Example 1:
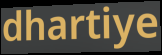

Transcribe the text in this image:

dhartiye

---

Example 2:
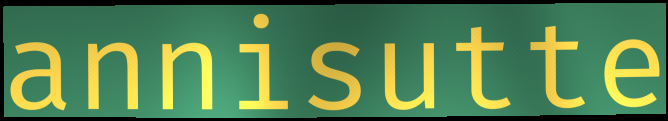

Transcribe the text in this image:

annisutte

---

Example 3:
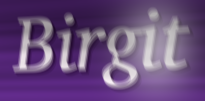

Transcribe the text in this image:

Birgit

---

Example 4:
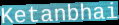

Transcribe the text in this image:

Ketanbhai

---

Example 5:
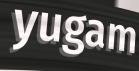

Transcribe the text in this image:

yugam